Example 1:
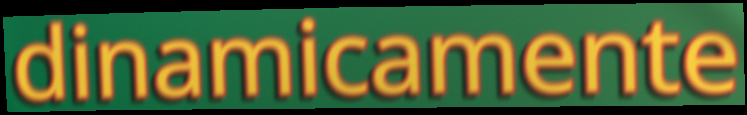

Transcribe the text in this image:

dinamicamente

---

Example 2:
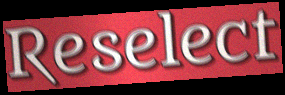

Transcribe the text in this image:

Reselect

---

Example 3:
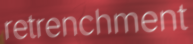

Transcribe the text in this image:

retrenchment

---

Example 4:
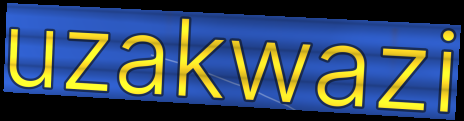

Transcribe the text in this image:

uzakwazi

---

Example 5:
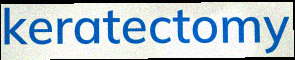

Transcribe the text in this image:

keratectomy